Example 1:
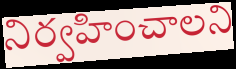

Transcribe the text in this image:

నిర్వహించాలని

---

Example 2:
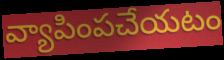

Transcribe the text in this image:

వ్యాపింపచేయటం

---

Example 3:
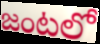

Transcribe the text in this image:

జంటలో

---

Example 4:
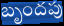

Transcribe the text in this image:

బృందపు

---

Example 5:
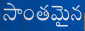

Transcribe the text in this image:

సాంతమైన